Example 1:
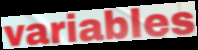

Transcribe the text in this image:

variables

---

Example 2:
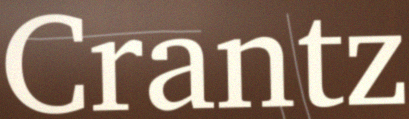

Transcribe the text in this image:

Crantz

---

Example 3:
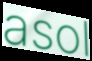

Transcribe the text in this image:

asol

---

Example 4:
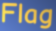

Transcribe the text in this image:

Flag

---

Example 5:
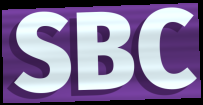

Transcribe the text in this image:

SBC